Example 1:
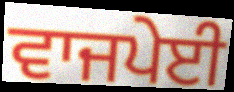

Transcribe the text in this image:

ਵਾਜਪੇਈ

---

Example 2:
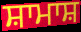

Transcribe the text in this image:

ਸ਼ਾਮਾਸ਼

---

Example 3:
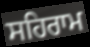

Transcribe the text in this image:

ਸਹਿਰਾਮ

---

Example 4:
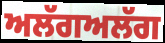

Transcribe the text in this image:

ਅਲੱਗਅਲੱਗ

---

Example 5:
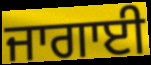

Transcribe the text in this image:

ਜਾਗਾਈ